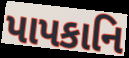
પાપકાનિ